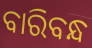
ବାରିବନ୍ଧ